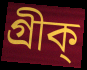
গ্ৰীক্